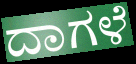
ದಾಗಳೆ